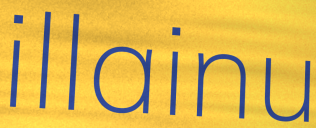
illainu